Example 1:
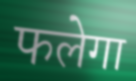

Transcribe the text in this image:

फलेगा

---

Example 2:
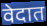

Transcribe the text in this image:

वेदात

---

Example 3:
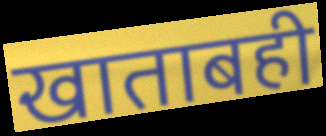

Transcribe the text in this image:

खाताबही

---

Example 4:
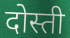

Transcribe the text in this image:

दोस्ती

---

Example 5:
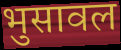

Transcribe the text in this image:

भुसावल